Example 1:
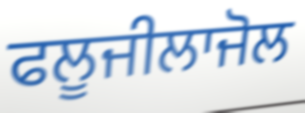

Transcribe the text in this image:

ਫਲੂਜੀਲਾਜੋਲ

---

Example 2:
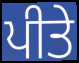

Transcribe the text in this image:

ਪੀਤੇ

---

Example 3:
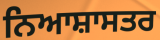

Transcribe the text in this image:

ਨਿਆਸ਼ਾਸਤਰ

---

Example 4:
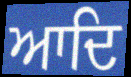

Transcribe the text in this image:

ਆਦਿ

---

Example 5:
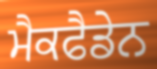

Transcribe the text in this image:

ਮੈਕਫੈਡੇਨ